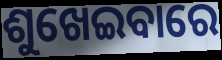
ଶୁଖେଇବାରେ